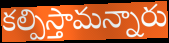
కల్పిస్తామన్నారు